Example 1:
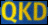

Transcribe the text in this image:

QKD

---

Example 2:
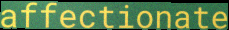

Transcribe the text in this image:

affectionate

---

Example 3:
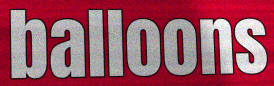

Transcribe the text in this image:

balloons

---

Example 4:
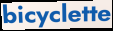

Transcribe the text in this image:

bicyclette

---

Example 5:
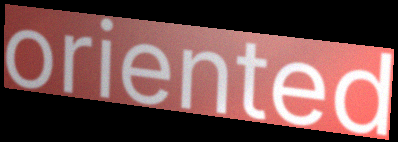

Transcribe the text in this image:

oriented